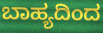
ಬಾಹ್ಯದಿಂದ